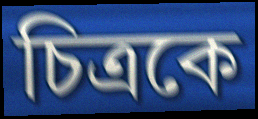
চিত্রকে